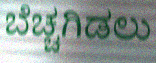
ಬೆಚ್ಚಗಿಡಲು